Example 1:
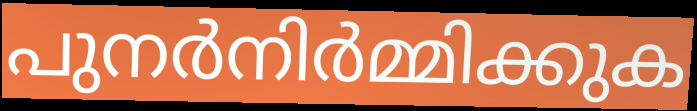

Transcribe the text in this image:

പുനർനിർമ്മിക്കുക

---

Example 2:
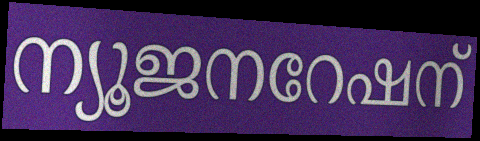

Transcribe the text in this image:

ന്യൂജനറേഷന്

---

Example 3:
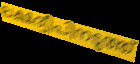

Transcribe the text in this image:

ലക്ഷദ്വീപിനടുത്ത്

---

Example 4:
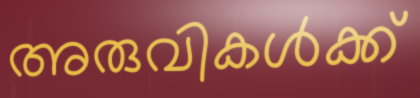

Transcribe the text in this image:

അരുവികൾക്ക്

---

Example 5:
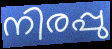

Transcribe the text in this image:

നിരപ്പു